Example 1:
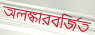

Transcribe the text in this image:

অলঙ্কারবর্জিত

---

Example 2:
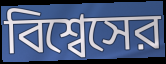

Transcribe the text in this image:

বিশ্বেসের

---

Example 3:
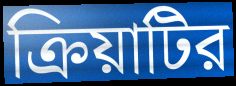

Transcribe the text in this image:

ক্রিয়াটির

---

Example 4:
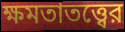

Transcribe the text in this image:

ক্ষমতাতত্ত্বের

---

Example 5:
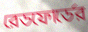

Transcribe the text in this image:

রেডফোর্ডের